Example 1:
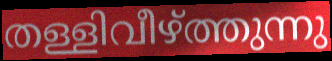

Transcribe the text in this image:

തള്ളിവീഴ്ത്തുന്നു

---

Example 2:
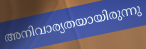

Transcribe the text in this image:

അനിവാര്യതയായിരുന്നു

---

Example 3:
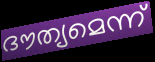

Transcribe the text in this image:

ദൗത്യമെന്ന്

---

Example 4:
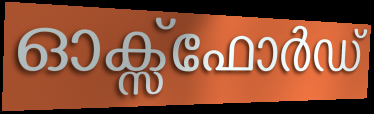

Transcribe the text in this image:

ഓക്സ്ഫോർഡ്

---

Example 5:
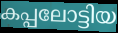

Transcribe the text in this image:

കപ്പലോട്ടിയ